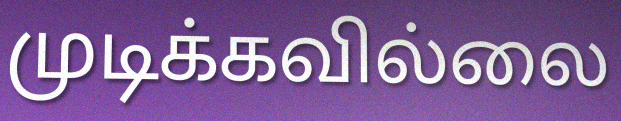
முடிக்கவில்லை